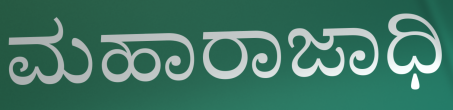
ಮಹಾರಾಜಾಧಿ